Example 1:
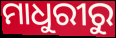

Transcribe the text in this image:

ମାଧୁରୀରୁ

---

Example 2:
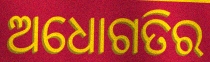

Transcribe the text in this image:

ଅଧୋଗତିର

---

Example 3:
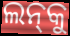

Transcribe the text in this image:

ଲନ୍‌କୁ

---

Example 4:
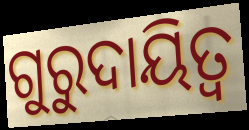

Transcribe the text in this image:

ଗୁରୁଦାୟିତ୍ଵ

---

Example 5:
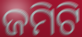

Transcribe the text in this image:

ଜମିଟି